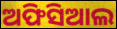
ଅଫିସିଆଲ